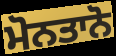
ਮੋਨਤਾਨੋ